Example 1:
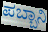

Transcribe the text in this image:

ಪಬ್ಬಾನಿ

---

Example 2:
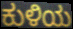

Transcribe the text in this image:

ಕುಳಿಯ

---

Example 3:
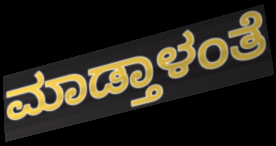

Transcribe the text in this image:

ಮಾಡ್ತಾಳಂತೆ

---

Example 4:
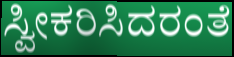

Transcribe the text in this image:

ಸ್ವೀಕರಿಸಿದರಂತೆ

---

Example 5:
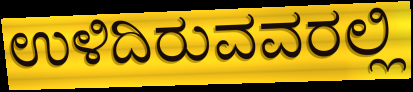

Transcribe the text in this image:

ಉಳಿದಿರುವವರಲ್ಲಿ